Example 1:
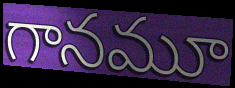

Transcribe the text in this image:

గానమూ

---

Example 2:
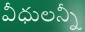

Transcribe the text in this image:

వీధులన్నీ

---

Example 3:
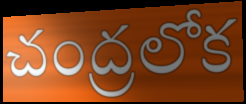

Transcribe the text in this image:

చంద్రలోక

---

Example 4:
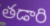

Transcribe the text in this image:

తడారి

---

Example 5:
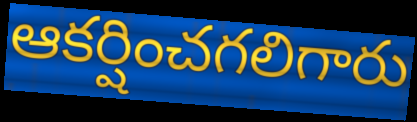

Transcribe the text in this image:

ఆకర్షించగలిగారు